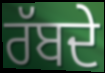
ਰੱਬਦੇ